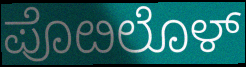
ಪೊೞಲೊಳ್